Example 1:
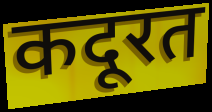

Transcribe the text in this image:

कदूरत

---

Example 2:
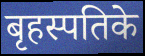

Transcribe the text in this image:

बृहस्पतिके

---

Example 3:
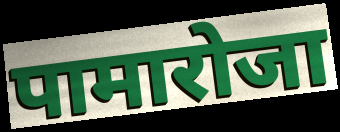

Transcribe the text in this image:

पामारोजा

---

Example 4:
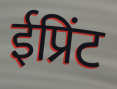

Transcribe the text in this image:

ईप्रिंट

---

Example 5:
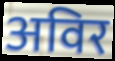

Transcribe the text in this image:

अविर